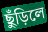
ছুঁড়িলে